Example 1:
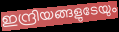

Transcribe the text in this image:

ഇന്ദ്രിയങ്ങളുടേയും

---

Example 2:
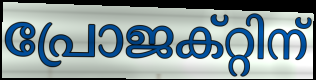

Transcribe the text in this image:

പ്രോജക്റ്റിന്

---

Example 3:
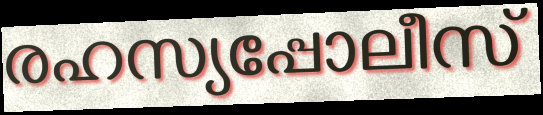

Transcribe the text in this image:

രഹസ്യപ്പോലീസ്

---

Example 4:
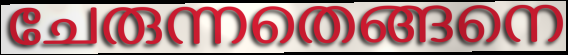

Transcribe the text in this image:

ചേരുന്നതെങ്ങനെ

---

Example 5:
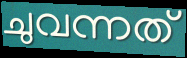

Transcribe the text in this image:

ചുവന്നത്